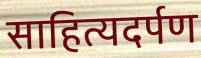
साहित्यदर्पण